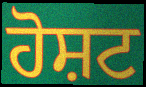
ਹੋਸ਼ਟ